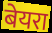
बेयरा